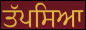
ਤੱਪਸਿਆ